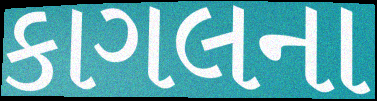
કાગલના